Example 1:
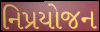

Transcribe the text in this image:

નિપ્રયોજન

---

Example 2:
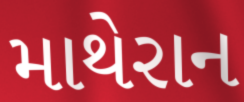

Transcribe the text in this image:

માથેરાન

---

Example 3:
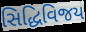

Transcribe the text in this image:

સિદ્ધિવિજય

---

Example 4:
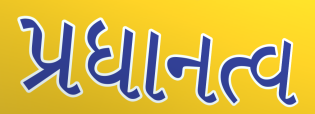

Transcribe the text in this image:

પ્રધાનત્વ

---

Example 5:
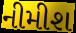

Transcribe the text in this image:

નીમીશ